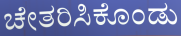
ಚೇತರಿಸಿಕೊಂಡು